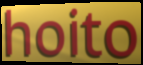
hoito